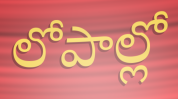
లోపాల్లో